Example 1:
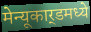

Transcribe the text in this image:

मेन्यूकार्डमध्ये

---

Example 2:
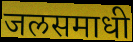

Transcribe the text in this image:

जलसमाधी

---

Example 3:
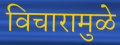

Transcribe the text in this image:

विचारामुळे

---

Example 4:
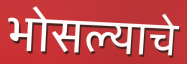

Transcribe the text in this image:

भोसल्याचे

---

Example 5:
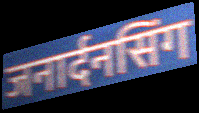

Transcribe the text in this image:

जनार्दनसिंग